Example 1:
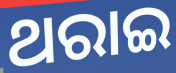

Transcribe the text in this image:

ଥରାଇ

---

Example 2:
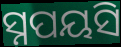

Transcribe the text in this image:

ସ୍ନପୟସି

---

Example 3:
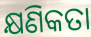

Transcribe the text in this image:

କ୍ଷଣିକତା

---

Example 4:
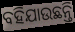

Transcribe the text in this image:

ବହିଯାଉଛନ୍ତି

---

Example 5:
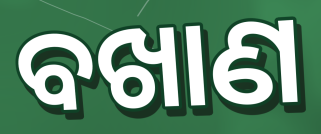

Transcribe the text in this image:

ବଖାଣ